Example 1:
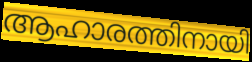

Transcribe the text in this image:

ആഹാരത്തിനായി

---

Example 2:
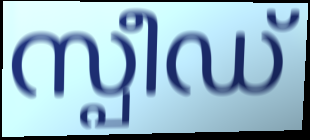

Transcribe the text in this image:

സ്പീഡ്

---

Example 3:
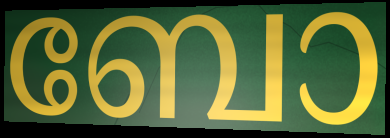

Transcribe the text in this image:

ബോ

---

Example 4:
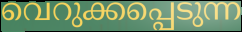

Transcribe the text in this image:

വെറുക്കപ്പെടുന്ന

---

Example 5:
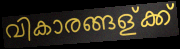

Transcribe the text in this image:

വികാരങ്ങള്ക്ക്